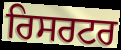
ਰਿਸਰਟਰ